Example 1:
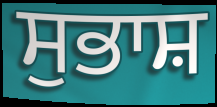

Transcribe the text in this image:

ਸੁਭਾਸ਼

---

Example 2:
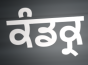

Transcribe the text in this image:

ਕੰਡਕ੍ਰ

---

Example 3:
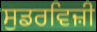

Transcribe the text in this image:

ਸੁਡਰਵਿਜ਼ੀ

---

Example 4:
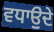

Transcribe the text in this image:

ਵਧਾਉੁਂਦੇ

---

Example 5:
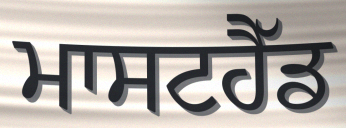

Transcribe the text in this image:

ਮਾਸਟਹੈੱਡ